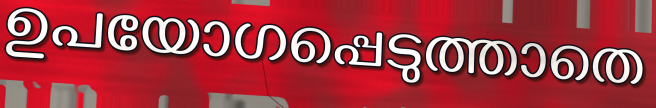
ഉപയോഗപ്പെടുത്താതെ